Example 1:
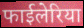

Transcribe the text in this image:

फाईलेरिया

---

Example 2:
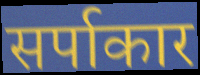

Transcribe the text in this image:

सर्पाकार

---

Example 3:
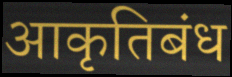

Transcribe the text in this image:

आकृतिबंध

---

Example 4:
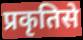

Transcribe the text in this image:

प्रकृतिसे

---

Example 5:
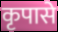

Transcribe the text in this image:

कृपासे